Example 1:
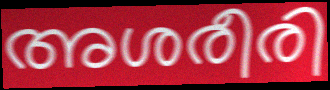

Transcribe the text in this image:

അശരീരി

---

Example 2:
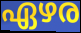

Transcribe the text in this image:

ഏഴര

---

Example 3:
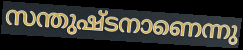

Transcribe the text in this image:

സന്തുഷ്ടനാണെന്നു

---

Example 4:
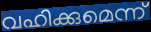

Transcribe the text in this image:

വഹിക്കുമെന്ന്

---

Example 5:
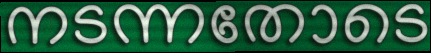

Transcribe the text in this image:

നടന്നതോടെ